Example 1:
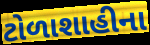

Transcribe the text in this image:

ટોળાશાહીના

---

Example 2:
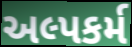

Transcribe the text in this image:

અલ્પકર્મ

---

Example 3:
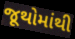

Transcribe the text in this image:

જૂથોમાંથી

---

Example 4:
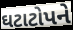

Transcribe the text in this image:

ઘટાટોપને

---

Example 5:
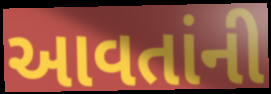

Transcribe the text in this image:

આવતાંની